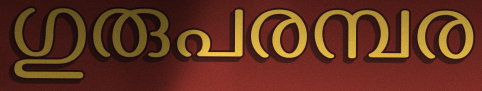
ഗുരുപരമ്പര